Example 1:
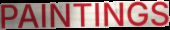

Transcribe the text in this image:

PAINTINGS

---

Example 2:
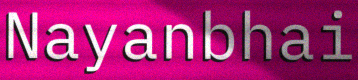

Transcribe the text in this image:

Nayanbhai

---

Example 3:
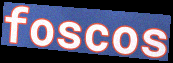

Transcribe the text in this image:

foscos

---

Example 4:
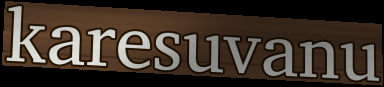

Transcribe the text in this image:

karesuvanu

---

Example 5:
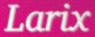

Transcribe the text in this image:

Larix